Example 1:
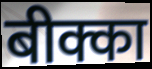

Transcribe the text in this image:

बीक्का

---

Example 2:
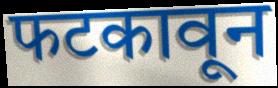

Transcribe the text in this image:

फटकावून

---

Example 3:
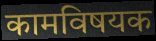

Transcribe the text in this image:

कामविषयक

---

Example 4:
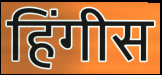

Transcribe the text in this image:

हिंगीस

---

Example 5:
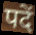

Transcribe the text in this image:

पदें